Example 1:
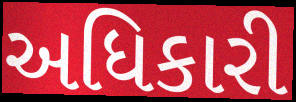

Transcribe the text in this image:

અધિકારી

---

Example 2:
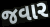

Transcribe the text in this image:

જવાર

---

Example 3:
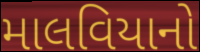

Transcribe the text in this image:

માલવિયાનો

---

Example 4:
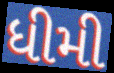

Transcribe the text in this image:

ધીમી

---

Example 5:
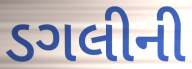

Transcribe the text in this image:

ડગલીની